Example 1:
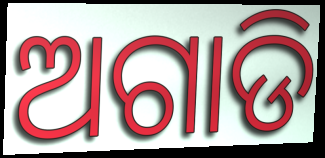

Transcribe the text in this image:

ଅଗାଡି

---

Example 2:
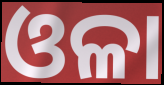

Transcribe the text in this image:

ଓଳା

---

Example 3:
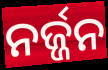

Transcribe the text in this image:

ନର୍ଜ୍ଜନ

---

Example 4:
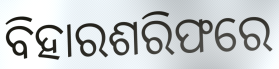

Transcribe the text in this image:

ବିହାରଶରିଫରେ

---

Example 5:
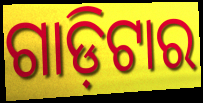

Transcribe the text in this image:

ଗାଡ଼ିଟାର